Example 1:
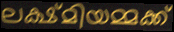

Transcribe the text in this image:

ലക്ഷ്മിയമ്മക്ക്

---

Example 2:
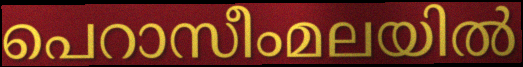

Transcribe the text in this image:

പെറാസീംമലയിൽ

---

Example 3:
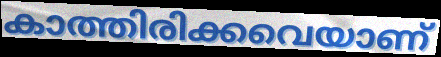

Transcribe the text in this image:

കാത്തിരിക്കവെയാണ്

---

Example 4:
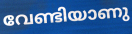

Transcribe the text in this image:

വേണ്ടിയാണു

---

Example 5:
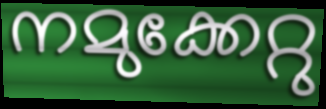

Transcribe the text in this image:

നമുക്കേറ്റു